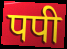
पपी